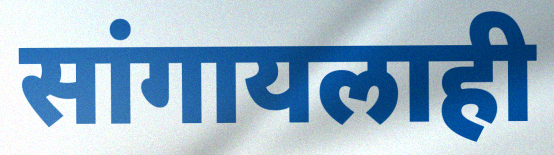
सांगायलाही